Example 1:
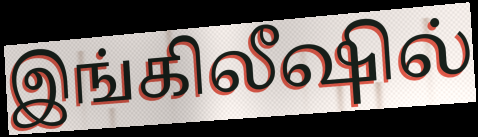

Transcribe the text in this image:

இங்கிலீஷில்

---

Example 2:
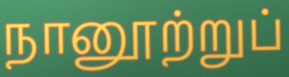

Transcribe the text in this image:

நானூற்றுப்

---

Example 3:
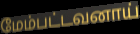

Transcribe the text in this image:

மேம்பட்டவனாய்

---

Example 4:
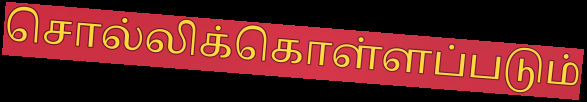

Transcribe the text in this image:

சொல்லிக்கொள்ளப்படும்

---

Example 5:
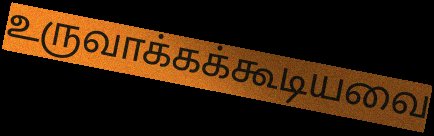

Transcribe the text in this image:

உருவாக்கக்கூடியவை